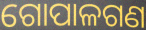
ଗୋପାଳଗଣ